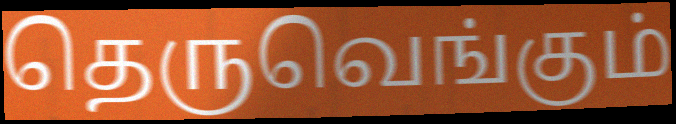
தெருவெங்கும்